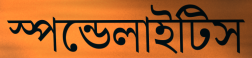
স্পন্ডেলাইটিস